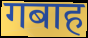
गबाह